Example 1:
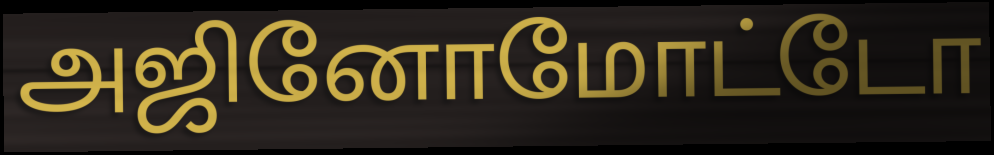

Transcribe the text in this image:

அஜினோமோட்டோ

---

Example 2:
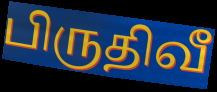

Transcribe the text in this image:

பிருதிவீ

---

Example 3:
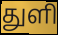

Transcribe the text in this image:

துளி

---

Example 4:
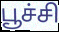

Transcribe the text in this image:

பூச்சி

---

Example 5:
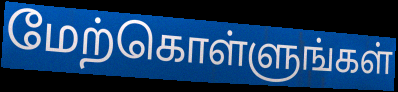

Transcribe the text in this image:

மேற்கொள்ளுங்கள்